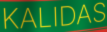
KALIDAS